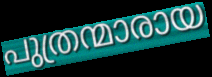
പുത്രന്മാരായ